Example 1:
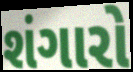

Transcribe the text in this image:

શંગારો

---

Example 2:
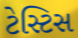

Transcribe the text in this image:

ટેસ્ટિસ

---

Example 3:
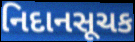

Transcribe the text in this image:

નિદાનસૂચક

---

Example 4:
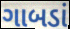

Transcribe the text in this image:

ગાબડાં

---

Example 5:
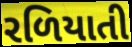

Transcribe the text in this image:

રળિયાતી